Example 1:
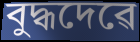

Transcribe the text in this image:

বুদ্ধদেৱে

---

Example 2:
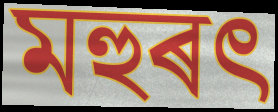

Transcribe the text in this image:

মহুৰৎ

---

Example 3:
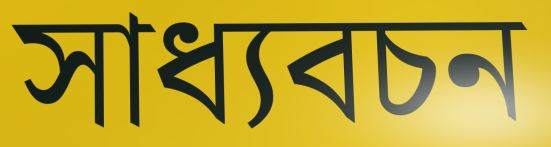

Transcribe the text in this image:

সাধ্যবচন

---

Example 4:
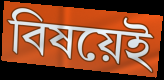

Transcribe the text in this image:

বিষয়েই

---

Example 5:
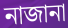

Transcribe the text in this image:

নাজানা